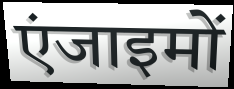
एंजाइमों